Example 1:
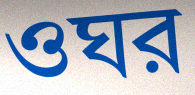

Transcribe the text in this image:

ওঘর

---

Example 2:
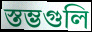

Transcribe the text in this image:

স্তম্ভগুলি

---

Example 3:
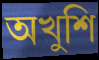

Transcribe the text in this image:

অখুশি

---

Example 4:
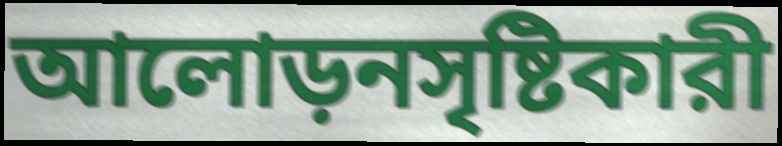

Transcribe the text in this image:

আলোড়নসৃষ্টিকারী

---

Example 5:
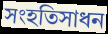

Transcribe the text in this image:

সংহতিসাধন